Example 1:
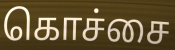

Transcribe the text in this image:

கொச்சை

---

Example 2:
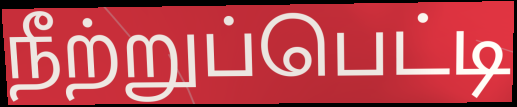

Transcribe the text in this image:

நீற்றுப்பெட்டி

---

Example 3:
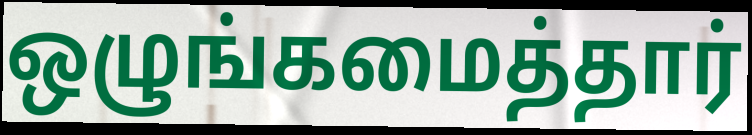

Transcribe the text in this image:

ஒழுங்கமைத்தார்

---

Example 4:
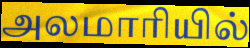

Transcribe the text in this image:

அலமாரியில்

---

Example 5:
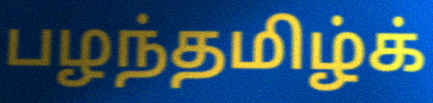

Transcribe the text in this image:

பழந்தமிழ்க்